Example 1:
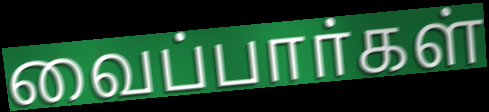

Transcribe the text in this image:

வைப்பார்கள்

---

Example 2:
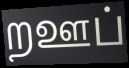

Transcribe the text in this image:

றஊப்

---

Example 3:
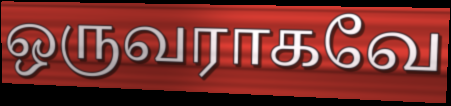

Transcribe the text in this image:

ஒருவராகவே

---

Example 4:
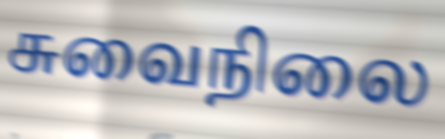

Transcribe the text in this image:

சுவைநிலை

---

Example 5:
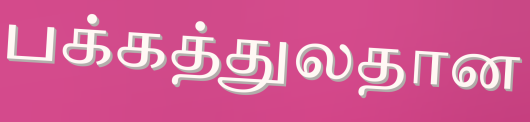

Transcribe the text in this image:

பக்கத்துலதான